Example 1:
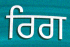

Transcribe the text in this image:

ਰਿਗ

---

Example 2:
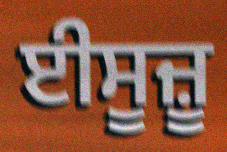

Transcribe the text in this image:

ਈਸੂਜ਼ੂ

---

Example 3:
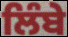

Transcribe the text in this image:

ਲਿੰਬੇ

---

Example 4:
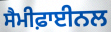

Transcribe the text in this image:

ਸੈਮੀਫ਼ਾਈਨਲ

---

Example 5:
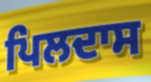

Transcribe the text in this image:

ਪਿਲਦਾਸ